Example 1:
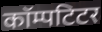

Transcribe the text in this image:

कॉम्पटिटर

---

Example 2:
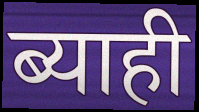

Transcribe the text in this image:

ब्याही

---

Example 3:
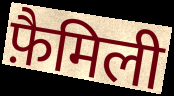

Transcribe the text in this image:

फ़ैमिली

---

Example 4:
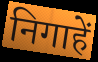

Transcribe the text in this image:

निगाहें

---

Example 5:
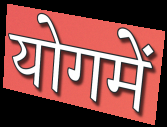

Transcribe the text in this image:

योगमें